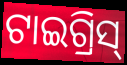
ଟାଇଗ୍ରିସ୍